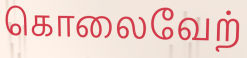
கொலைவேற்